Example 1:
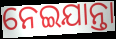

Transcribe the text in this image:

ନେଇଯାନ୍ତା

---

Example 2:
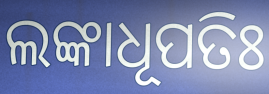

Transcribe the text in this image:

ଲଙ୍କାଧୂପତିଃ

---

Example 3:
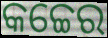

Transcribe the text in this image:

କଚ୍ଚେର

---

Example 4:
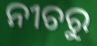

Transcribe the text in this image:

ନୀଚରୁ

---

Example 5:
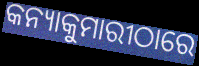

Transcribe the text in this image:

କନ୍ୟାକୁମାରୀଠାରେ